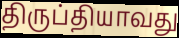
திருப்தியாவது